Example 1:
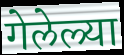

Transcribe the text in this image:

गेलेल्या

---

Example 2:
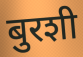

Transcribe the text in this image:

बुरशी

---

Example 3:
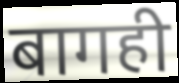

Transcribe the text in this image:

बागही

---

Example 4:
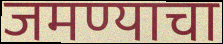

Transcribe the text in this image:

जमण्याचा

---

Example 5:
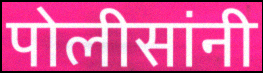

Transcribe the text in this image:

पोलीसांनी